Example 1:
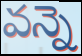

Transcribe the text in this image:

వన్నె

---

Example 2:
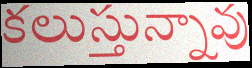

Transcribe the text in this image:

కలుస్తున్నావు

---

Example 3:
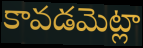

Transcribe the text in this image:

కావడమెట్లా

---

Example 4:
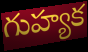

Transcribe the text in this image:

గుహ్యక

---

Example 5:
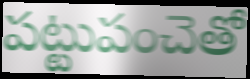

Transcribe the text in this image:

పట్టుపంచెతో